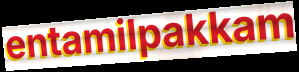
entamilpakkam